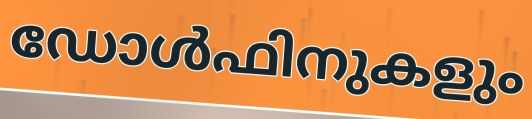
ഡോൾഫിനുകളും